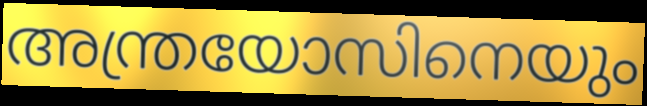
അന്ത്രയോസിനെയും